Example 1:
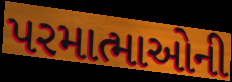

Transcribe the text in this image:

પરમાત્માઓની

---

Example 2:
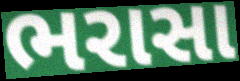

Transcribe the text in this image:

ભરાસા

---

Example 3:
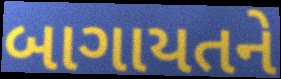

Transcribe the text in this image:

બાગાયતને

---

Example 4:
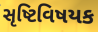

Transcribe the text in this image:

સૃષ્ટિવિષયક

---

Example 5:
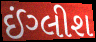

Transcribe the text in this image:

ઈંગ્લીશ